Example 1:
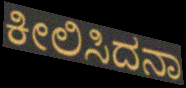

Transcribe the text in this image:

ಕೀಲಿಸಿದನಾ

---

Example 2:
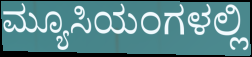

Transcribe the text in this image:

ಮ್ಯೂಸಿಯಂಗಳಲ್ಲಿ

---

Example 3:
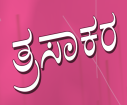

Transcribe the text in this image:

ತ್ರಸಾಕರ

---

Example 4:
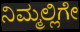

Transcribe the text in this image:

ನಿಮ್ಮಲ್ಲಿಗೇ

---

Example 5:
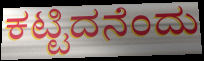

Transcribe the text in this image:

ಕಟ್ಟಿದನೆಂದು